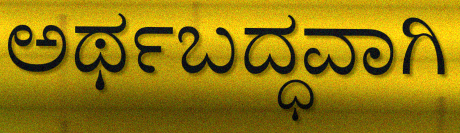
ಅರ್ಥಬದ್ಧವಾಗಿ